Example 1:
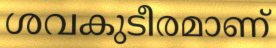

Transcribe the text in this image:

ശവകുടീരമാണ്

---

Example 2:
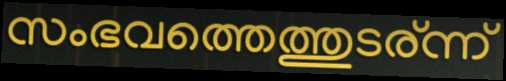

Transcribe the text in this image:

സംഭവത്തെത്തുടര്ന്ന്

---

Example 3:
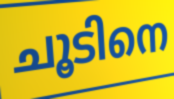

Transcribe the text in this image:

ചൂടിനെ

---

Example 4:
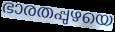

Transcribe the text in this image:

ഭാരതപ്പുഴയെ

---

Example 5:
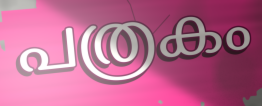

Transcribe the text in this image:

പത്രകം